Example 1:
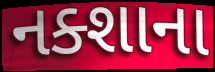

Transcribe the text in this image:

નક્શાના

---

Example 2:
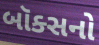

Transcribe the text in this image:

બૉક્સનો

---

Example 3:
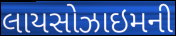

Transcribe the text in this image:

લાયસોઝાઇમની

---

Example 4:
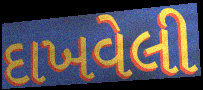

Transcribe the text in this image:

દાખવેલી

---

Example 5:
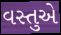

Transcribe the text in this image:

વસ્તુએ